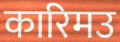
कारिमउ